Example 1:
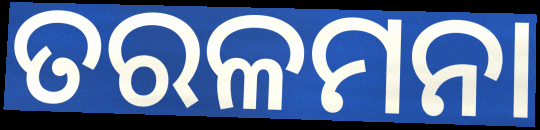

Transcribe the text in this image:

ତରଳମନା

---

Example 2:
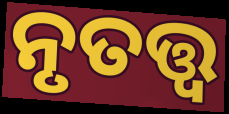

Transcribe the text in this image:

ନୃତତ୍ତ୍ୱ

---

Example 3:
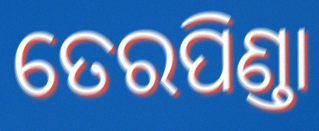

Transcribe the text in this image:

ତେରପିଣ୍ଡା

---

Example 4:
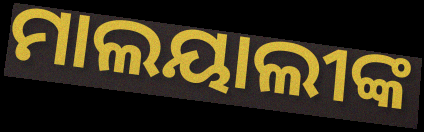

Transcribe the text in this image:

ମାଲୟାଲୀଙ୍କ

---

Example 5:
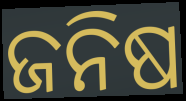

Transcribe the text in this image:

ଜନିଷ